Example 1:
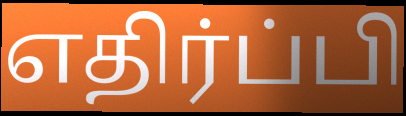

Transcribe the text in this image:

எதிர்ப்பி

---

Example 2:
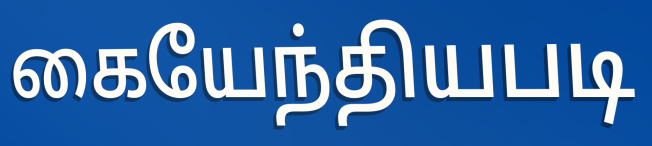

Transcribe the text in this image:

கையேந்தியபடி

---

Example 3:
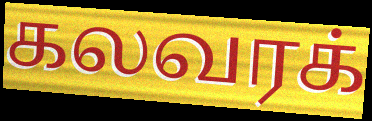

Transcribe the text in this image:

கலவரக்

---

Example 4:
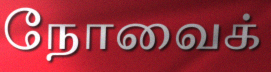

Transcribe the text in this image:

நோவைக்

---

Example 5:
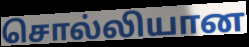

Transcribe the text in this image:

சொல்லியான